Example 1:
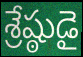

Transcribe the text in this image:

శ్రేష్ఠుడై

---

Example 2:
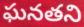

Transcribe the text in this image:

ఘనతని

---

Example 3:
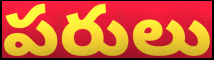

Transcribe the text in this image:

పరులు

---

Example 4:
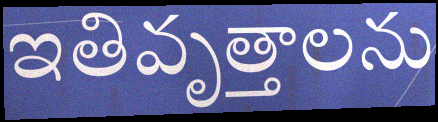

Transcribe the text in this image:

ఇతివృత్తాలను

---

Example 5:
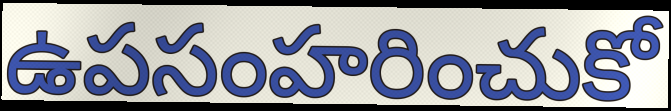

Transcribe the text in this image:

ఉపసంహరించుకో